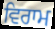
ਵਿਰਾਮ